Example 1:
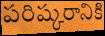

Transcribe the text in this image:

పరిష్కరానికి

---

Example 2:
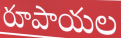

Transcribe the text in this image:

రూపాయల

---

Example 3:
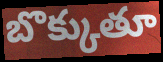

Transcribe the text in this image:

బొక్కుతూ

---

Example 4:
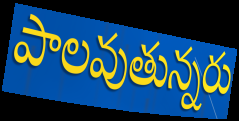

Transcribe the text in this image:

పాలవుతున్నరు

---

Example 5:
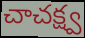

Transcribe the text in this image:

చాచక్ష్వ